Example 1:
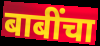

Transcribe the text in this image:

बाबींचा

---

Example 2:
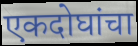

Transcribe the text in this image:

एकदोघांचा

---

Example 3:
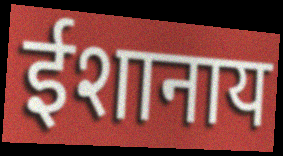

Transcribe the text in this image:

ईशानाय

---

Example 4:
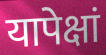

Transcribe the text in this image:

यापेक्षां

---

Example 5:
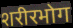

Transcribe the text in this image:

शरीरभोग